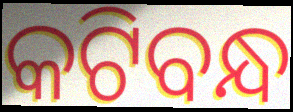
କଟିବନ୍ଧ